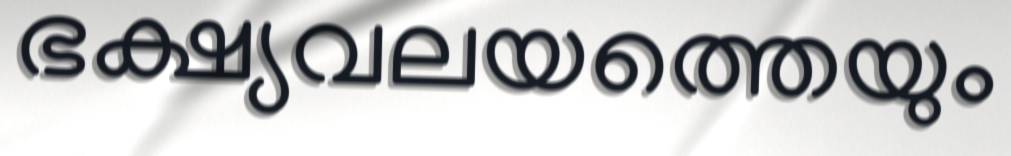
ഭക്ഷ്യവലയത്തെയും